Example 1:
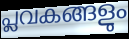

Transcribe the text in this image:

പ്ലവകങ്ങളും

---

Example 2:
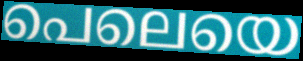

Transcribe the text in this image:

പെലെയെ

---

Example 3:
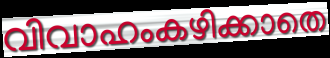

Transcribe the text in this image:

വിവാഹംകഴിക്കാതെ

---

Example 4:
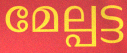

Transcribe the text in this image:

മേല്പട്ട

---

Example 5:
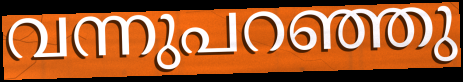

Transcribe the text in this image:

വന്നുപറഞ്ഞു